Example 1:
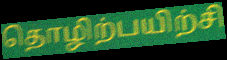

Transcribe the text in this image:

தொழிற்பயிற்சி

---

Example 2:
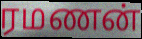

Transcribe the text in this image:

ரமணன்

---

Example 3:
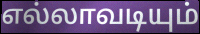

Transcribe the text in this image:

எல்லாவடியும்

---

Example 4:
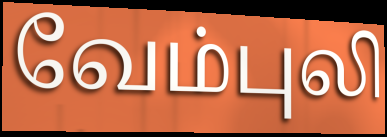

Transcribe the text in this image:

வேம்புலி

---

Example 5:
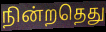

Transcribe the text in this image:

நின்றதெது